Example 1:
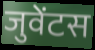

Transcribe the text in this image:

जुवेंटस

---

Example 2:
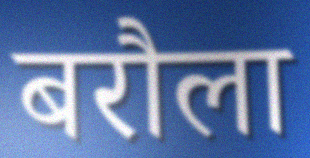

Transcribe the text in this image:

बरौला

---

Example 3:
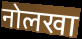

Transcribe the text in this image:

नोलखा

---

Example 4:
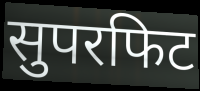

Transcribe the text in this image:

सुपरफिट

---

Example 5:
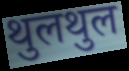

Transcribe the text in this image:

थुलथुल